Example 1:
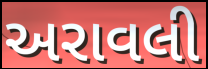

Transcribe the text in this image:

અરાવલી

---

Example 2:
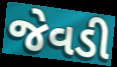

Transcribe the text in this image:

જેવડી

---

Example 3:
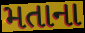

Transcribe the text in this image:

મતાના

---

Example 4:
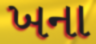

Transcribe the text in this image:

ખના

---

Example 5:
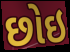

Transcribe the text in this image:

છોઇ